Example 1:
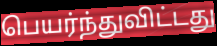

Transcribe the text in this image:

பெயர்ந்துவிட்டது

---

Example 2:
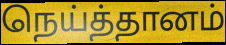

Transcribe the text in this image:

நெய்த்தானம்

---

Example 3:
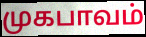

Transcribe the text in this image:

முகபாவம்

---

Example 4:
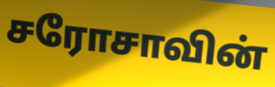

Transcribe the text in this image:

சரோசாவின்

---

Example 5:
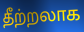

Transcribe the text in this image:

தீற்றலாக